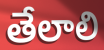
తేలాలి